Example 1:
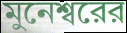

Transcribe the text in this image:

মুনেশ্বরের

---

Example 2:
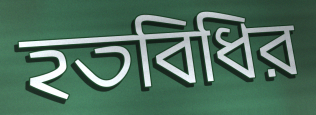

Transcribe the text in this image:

হতবিধির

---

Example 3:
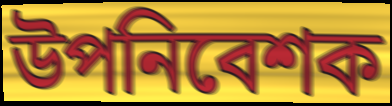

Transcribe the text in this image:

উপনিবেশক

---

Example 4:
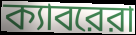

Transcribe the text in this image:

ক্যাবরেরা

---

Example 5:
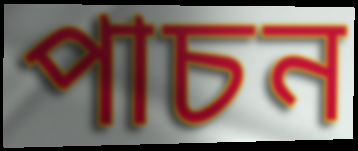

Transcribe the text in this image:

পাচন